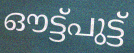
ഔട്ട്പുട്ട്